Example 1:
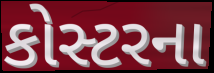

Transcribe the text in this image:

કોસ્ટરના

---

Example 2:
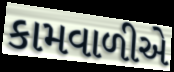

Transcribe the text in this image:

કામવાળીએ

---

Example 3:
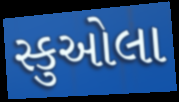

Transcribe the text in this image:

સ્કુઓલા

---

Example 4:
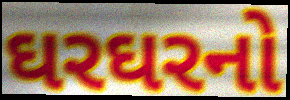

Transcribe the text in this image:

ઘરઘરનો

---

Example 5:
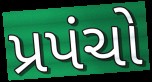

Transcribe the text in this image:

પ્રપંચો